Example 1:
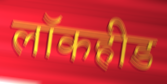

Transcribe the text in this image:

लॉकहीड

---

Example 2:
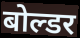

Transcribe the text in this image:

बोल्डर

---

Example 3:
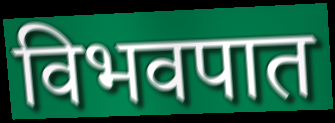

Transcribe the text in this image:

विभवपात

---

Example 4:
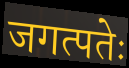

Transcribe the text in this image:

जगत्पतेः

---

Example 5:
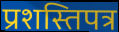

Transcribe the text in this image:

प्रशस्तिपत्र